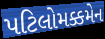
પટિલોમક્કમેન